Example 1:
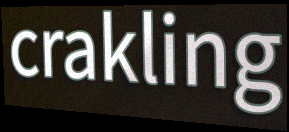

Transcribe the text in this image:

crakling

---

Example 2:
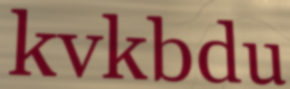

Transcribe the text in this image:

kvkbdu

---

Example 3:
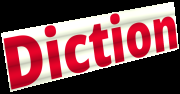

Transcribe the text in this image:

Diction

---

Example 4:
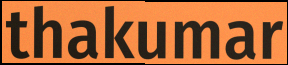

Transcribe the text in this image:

thakumar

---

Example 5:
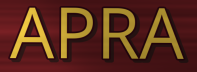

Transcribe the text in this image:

APRA